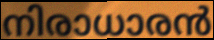
നിരാധാരൻ